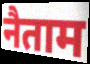
नैताम